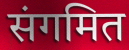
संगमित